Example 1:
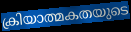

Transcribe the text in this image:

ക്രിയാത്മകതയുടെ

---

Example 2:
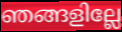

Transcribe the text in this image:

ഞങ്ങളില്ലേ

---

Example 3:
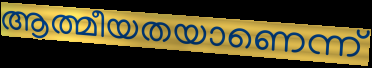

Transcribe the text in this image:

ആത്മീയതയാണെന്ന്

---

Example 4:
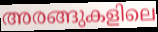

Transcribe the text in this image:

അരങ്ങുകളിലെ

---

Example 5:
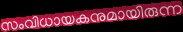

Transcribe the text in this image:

സംവിധായകനുമായിരുന്ന